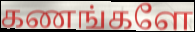
கணங்களே